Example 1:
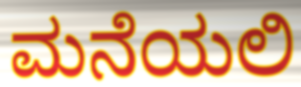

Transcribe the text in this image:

ಮನೆಯಲಿ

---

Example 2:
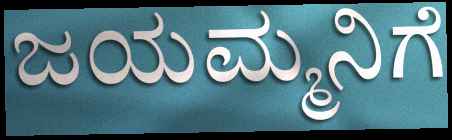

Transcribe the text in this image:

ಜಯಮ್ಮನಿಗೆ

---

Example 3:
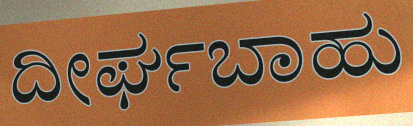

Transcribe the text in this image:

ದೀರ್ಘಬಾಹು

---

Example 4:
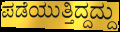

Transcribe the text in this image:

ಪಡೆಯುತ್ತಿದ್ದದ್ದು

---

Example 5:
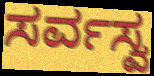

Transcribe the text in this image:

ಸರ್ವಸ್ವ